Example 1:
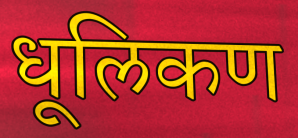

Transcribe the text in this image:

धूलिकण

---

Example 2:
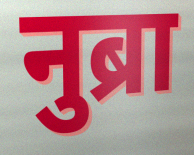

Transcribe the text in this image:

नुब्रा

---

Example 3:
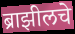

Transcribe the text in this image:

ब्राझीलचे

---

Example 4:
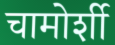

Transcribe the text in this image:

चामोर्शी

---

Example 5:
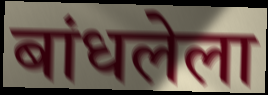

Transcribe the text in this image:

बांधलेला